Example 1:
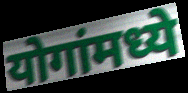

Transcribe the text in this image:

योगांमध्ये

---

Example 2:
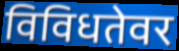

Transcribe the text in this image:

विविधतेवर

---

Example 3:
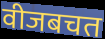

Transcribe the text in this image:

वीजबचत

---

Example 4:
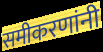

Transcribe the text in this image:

समीकरणांनी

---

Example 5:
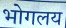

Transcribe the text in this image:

भोगलय